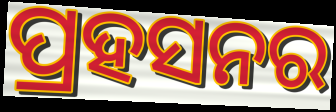
ପ୍ରହସନର